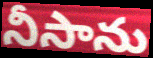
నీసాను